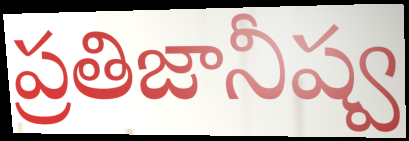
ప్రతిజానీష్వ